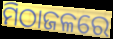
ମିଠାଜଳରେ